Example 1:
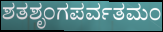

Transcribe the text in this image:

ಶತಶೃಂಗಪರ್ವತಮಂ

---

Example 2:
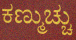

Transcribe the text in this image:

ಕಣ್ಮುಚ್ಚು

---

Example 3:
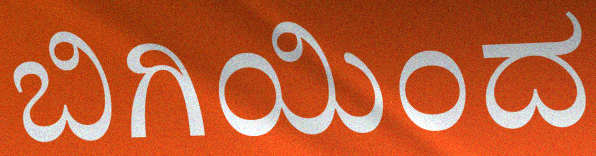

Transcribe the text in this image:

ಬಿಗಿಯಿಂದ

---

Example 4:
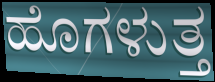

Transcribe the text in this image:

ಹೊಗಳುತ್ತ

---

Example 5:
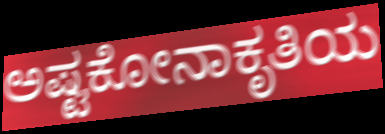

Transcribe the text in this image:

ಅಷ್ಟಕೋನಾಕೃತಿಯ